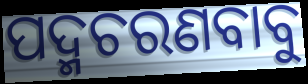
ପଦ୍ମଚରଣବାବୁ